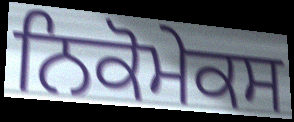
ਨਿਕੋਮੇਕਸ